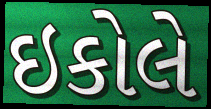
ઇકોલે